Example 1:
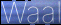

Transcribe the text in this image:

Waal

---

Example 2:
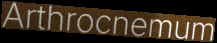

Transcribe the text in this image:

Arthrocnemum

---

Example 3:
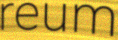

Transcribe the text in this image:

reum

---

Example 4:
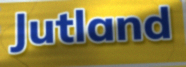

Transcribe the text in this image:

Jutland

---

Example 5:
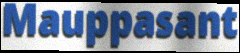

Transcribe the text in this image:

Mauppasant